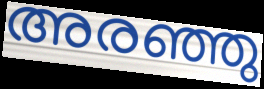
അരഞ്ഞു